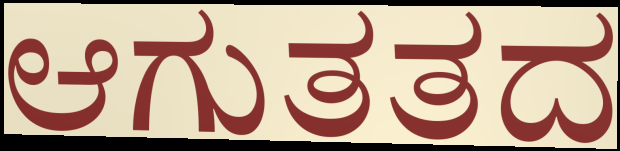
ಆಗುತತದ